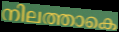
നിലത്താകെ